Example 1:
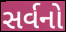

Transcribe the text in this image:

સર્વનો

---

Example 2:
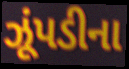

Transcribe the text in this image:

ઝૂંપડીના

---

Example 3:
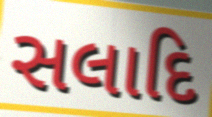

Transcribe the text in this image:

સલાદિ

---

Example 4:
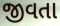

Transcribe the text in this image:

જીવતા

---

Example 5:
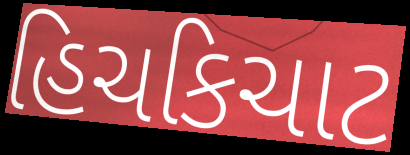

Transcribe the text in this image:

હિચકિચાટ